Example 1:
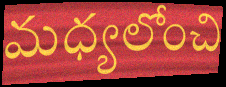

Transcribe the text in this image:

మధ్యలోంచి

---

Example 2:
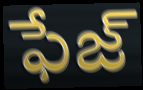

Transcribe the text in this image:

ఫేజ్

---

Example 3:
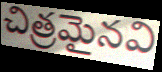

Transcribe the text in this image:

చిత్రమైనవి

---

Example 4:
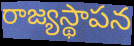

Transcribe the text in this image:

రాజ్యస్థాపన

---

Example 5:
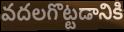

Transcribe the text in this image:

వదలగొట్టడానికి